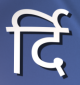
र्दि